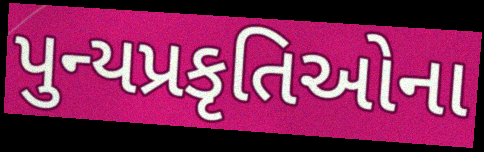
પુન્યપ્રકૃતિઓના